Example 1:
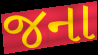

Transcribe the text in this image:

જના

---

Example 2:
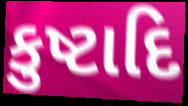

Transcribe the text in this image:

કુષ્ટાદિ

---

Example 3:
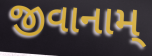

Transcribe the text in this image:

જીવાનામ્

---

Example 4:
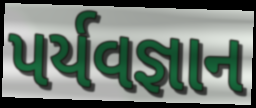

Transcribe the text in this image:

પર્યવજ્ઞાન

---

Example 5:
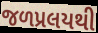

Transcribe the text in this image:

જળપ્રલયથી